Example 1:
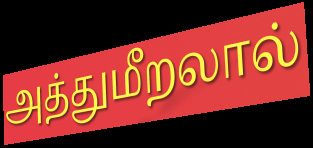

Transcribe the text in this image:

அத்துமீறலால்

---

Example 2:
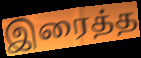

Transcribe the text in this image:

இரைத்த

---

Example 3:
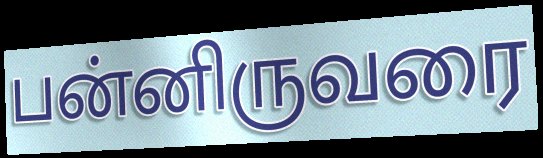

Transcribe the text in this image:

பன்னிருவரை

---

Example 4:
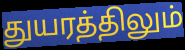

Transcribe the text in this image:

துயரத்திலும்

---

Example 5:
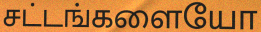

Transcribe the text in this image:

சட்டங்களையோ